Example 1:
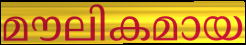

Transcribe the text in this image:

മൗലികമായ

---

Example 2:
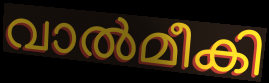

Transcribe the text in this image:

വാൽമീകി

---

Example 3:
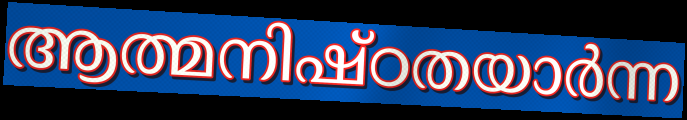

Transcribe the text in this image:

ആത്മനിഷ്ഠതയാർന്ന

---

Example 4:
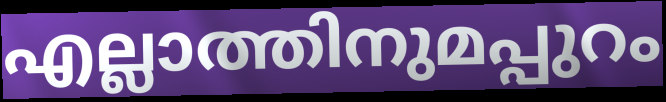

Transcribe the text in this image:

എല്ലാത്തിനുമപ്പുറം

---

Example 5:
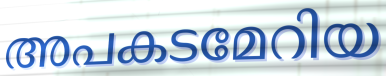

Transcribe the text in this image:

അപകടമേറിയ